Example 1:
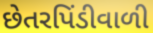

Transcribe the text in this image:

છેતરપિંડીવાળી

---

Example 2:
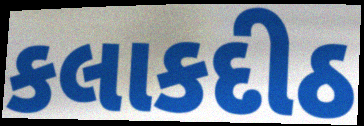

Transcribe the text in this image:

કલાકદીઠ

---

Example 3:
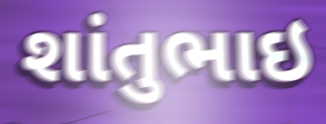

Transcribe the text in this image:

શાંતુભાઇ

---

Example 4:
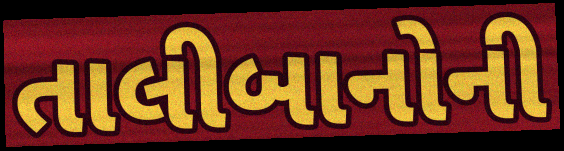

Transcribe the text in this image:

તાલીબાનોની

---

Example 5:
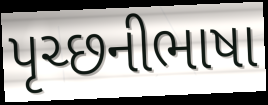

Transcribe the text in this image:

પૃચ્છનીભાષા